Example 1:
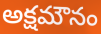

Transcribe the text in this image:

అక్షమౌనం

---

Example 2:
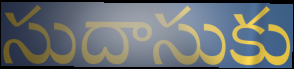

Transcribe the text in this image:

సుదాసుకు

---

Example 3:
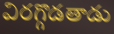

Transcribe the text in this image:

విరగ్గొడతాడు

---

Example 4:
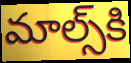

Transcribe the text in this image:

మాల్స్‌కి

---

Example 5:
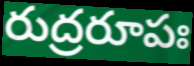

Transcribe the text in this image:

రుద్రరూపః